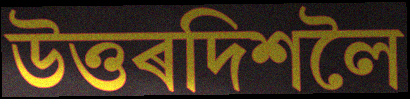
উত্তৰদিশলৈ